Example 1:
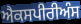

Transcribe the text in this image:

ਐਕਸਪੀਰੀਅੰਸ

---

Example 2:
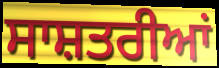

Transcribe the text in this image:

ਸਾਸ਼ਤਰੀਆਂ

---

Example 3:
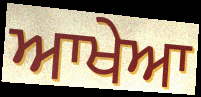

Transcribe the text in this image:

ਆਖੇਆ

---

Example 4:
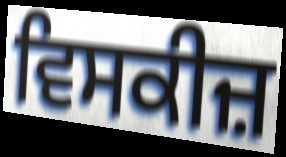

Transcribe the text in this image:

ਵਿਸਕੀਜ਼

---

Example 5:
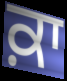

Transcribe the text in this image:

ਕ਼ਾ